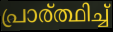
പ്രാര്ത്ഥിച്ച്